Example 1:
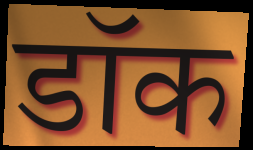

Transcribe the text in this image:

डॉक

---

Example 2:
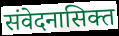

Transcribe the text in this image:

संवेदनासिक्त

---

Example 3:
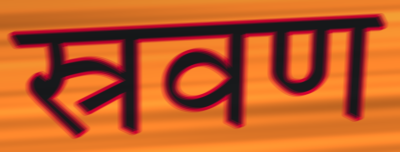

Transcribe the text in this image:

स्रवण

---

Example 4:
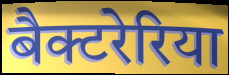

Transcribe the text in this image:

बैक्टरेरिया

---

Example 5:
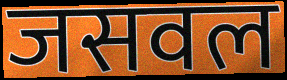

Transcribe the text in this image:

जसवल